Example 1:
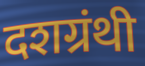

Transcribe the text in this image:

दशग्रंथी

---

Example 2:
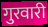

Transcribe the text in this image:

गुरवारी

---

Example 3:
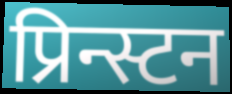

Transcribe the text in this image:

प्रिन्स्टन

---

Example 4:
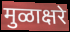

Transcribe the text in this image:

मुळाक्षरे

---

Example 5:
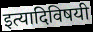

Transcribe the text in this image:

इत्यादिविषयी